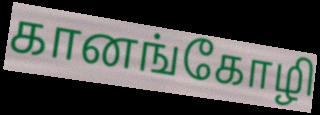
கானங்கோழி